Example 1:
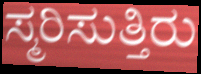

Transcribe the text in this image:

ಸ್ಮರಿಸುತ್ತಿರು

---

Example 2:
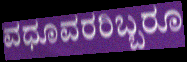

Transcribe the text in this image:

ವಧೂವರರಿಬ್ಬರೂ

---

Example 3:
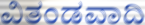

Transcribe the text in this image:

ವಿತಂಡವಾದಿ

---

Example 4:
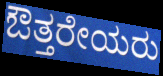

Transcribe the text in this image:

ಔತ್ತರೇಯರು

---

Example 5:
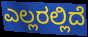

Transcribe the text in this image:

ಎಲ್ಲರಲ್ಲಿದೆ